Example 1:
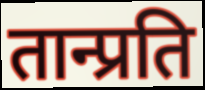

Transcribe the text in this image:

तान्प्रति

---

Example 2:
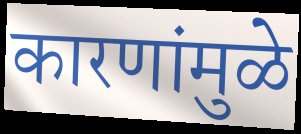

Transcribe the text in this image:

कारणांमुळे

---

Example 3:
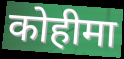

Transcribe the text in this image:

कोहीमा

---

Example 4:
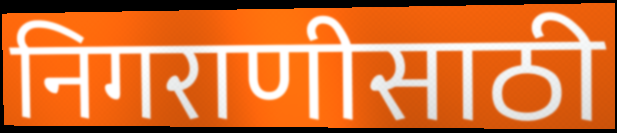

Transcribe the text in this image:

निगराणीसाठी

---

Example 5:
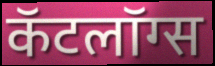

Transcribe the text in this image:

कॅटलॉग्स